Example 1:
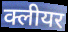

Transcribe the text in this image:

क्लीयर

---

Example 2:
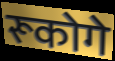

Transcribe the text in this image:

रूकोगे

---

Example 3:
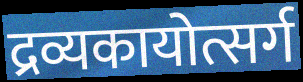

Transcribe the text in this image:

द्रव्यकायोत्सर्ग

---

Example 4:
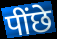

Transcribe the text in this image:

पींछे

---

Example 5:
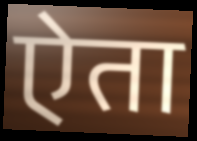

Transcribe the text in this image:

ऐता